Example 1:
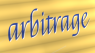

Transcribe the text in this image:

arbitrage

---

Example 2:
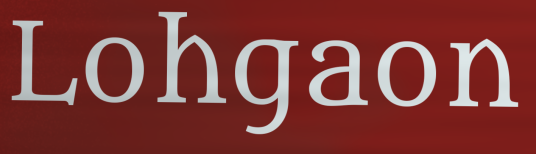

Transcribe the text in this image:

Lohgaon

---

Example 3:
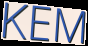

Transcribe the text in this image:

KEM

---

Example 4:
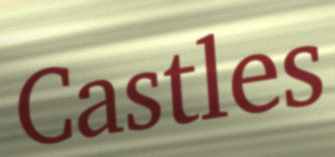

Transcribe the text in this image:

Castles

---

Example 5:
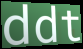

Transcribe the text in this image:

ddt